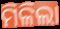
ମିଳିଲା